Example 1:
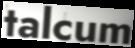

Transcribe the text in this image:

talcum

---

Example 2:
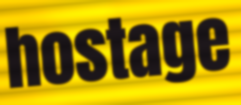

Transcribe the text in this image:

hostage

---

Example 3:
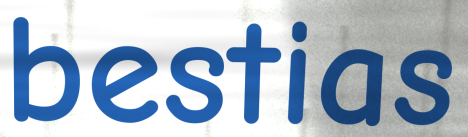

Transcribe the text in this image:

bestias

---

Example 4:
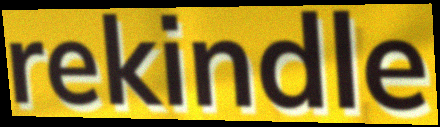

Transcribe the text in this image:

rekindle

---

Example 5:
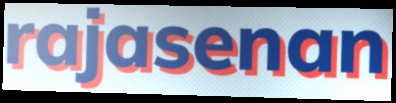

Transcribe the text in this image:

rajasenan